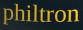
philtron